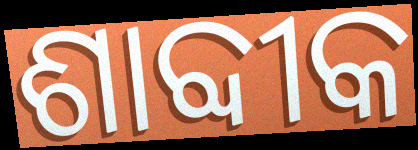
ଶାବ୍ଦୀକ